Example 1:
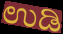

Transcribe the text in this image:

ಉಡಿ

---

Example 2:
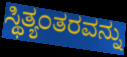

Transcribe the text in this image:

ಸ್ಥಿತ್ಯಂತರವನ್ನು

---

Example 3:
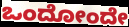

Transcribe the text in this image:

ಒಂದೋಂದೇ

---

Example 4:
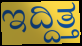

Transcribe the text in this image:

ಇದ್ದಿತ್ತ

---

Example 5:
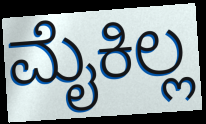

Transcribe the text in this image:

ಮೈಕಿಲ್ಲ